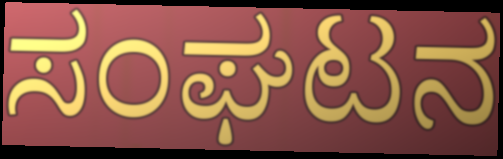
ಸಂಘಟನ